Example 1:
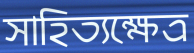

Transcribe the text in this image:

সাহিত্যক্ষেত্র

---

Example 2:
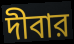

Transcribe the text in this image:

দীবার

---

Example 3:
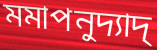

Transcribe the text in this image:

মমাপনুদ্যাদ্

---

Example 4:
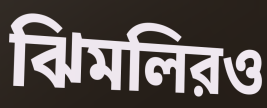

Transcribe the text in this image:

ঝিমলিরও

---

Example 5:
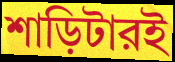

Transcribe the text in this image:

শাড়িটারই